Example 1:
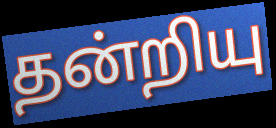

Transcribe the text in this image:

தன்றியு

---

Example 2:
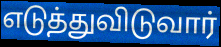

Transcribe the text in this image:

எடுத்துவிடுவார்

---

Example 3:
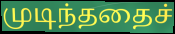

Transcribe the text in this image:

முடிந்ததைச்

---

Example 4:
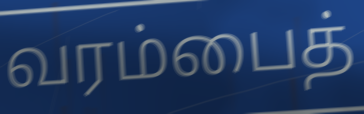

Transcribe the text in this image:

வரம்பைத்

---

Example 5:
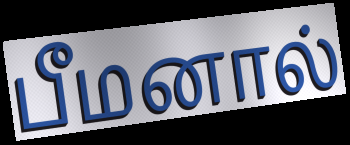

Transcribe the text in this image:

பீமனால்